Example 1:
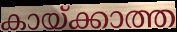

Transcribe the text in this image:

കായ്ക്കാത്ത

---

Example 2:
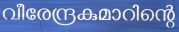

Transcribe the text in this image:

വീരേന്ദ്രകുമാറിന്റെ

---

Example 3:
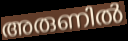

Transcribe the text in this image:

അരുണിൽ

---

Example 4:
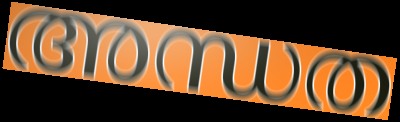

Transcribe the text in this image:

അന്ധത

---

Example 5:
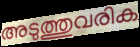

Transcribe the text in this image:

അടുത്തുവരിക